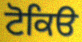
ਟੋਕਿੳ